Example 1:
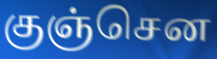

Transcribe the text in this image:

குஞ்சென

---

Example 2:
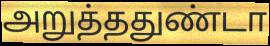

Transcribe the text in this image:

அறுத்ததுண்டா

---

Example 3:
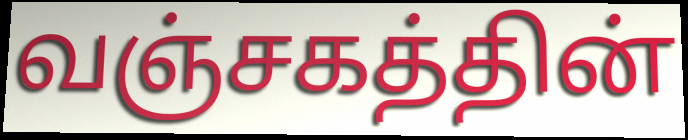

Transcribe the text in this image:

வஞ்சகத்தின்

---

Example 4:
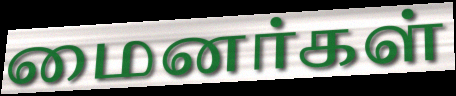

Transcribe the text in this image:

மைனர்கள்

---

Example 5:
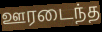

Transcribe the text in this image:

ஊரடைந்த